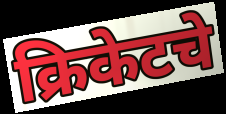
क्रिकेटचे